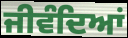
ਜੀਵੰਦਿਆਂ